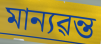
মান্যৱন্ত